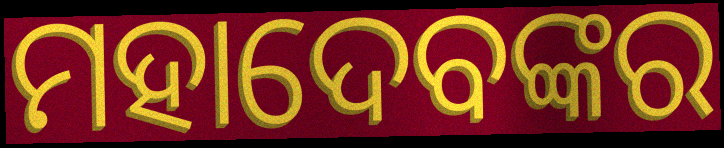
ମହାଦେବଙ୍କର